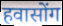
हवासोंग